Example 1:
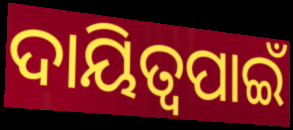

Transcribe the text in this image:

ଦାୟିତ୍ୱପାଇଁ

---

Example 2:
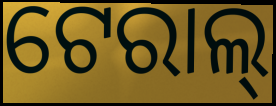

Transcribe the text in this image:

ଟେରାଲ୍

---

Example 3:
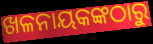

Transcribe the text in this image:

ଖଳନାୟକଙ୍କଠାରୁ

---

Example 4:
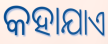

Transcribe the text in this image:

କହାଯାଏ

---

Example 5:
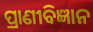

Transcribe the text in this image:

ପ୍ରାଣୀବିଜ୍ଞାନ